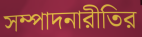
সম্পাদনারীতির